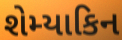
શેમ્યાકિન